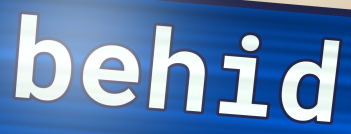
behid